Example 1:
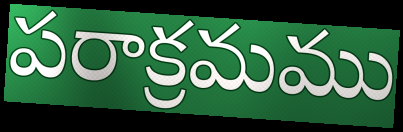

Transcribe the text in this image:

పరాక్రమము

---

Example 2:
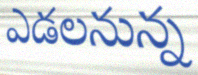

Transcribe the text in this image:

ఎడలనున్న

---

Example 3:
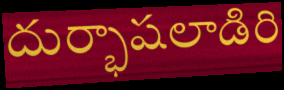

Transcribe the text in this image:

దుర్భాషలాడిరి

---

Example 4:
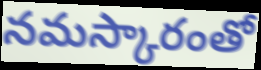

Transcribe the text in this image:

నమస్కారంతో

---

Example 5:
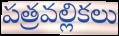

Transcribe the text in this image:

పత్రవల్లికలు